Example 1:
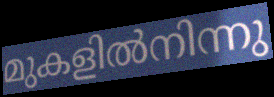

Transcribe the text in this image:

മുകളിൽനിന്നു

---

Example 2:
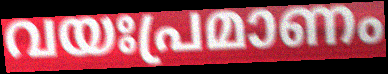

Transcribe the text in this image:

വയഃപ്രമാണം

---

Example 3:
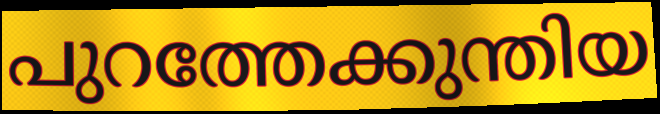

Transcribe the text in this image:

പുറത്തേക്കുന്തിയ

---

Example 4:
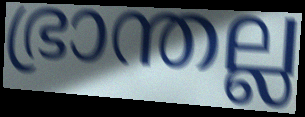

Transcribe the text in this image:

ഭ്രാന്തല്ല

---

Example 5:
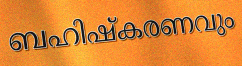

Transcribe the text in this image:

ബഹിഷ്കരണവും